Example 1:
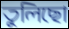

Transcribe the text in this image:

তুলিছো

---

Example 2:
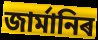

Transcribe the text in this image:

জাৰ্মানিৰ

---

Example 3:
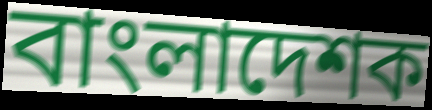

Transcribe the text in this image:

বাংলাদেশক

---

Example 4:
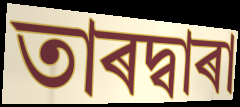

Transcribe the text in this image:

তাৰদ্বাৰা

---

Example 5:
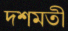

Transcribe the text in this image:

দশমতী